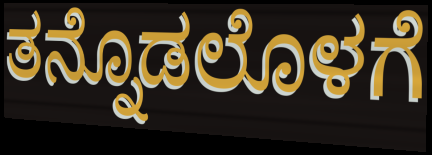
ತನ್ನೊಡಲೊಳಗೆ